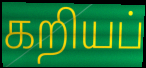
கறியப்